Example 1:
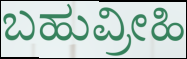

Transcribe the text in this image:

ಬಹುವ್ರೀಹಿ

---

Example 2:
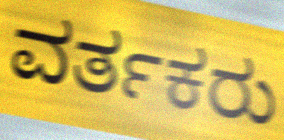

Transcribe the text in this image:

ವರ್ತಕರು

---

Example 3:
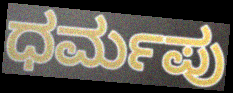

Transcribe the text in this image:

ಧರ್ಮಪು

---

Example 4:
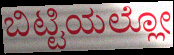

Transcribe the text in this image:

ಬಿಟ್ಟಿಯಲ್ಲೋ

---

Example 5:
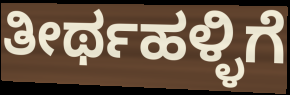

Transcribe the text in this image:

ತೀರ್ಥಹಳ್ಳಿಗೆ